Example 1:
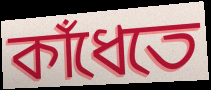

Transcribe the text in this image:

কাঁধেতে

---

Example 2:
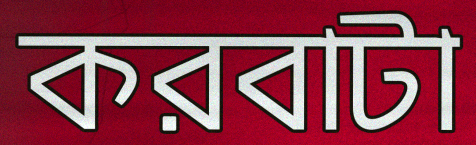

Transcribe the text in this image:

করবাটা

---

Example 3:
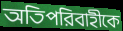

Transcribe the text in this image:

অতিপরিবাহীকে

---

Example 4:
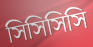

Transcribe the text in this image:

সিসিসিসি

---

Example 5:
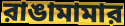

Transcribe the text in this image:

রাঙামামার